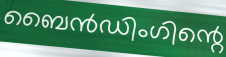
ബൈൻഡിംഗിന്റെ